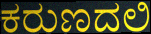
ಕರುಣದಲಿ